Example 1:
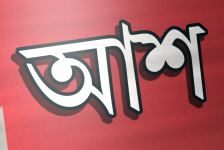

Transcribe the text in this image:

আশ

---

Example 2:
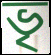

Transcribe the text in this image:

ভৃ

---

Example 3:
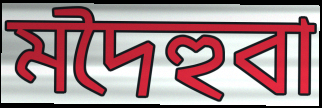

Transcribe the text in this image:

মদৈহুবা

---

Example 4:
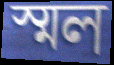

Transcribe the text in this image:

স্মল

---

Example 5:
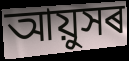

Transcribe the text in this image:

আয়ুসৰ